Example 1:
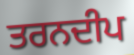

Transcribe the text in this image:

ਤਰਨਦੀਪ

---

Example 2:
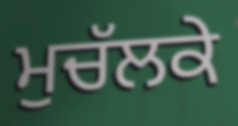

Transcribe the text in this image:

ਮੁਚੱਲਕੇ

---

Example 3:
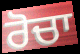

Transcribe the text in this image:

ਰੋਚਾ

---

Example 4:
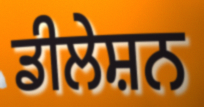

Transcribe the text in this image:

ਡੀਲੇਸ਼ਨ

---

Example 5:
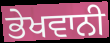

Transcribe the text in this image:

ਭੇਖਵਾਨੀ